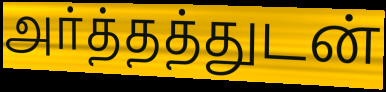
அர்த்தத்துடன்